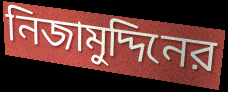
নিজামুদ্দিনের